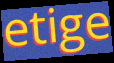
etige